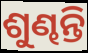
ଶୁଣ୍ଢନ୍ତି